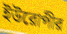
ইউরোপীর